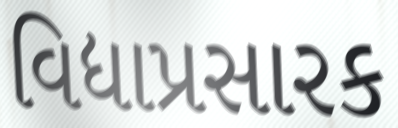
વિદ્યાપ્રસારક